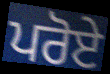
ਪਰੋਏ